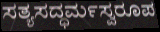
ಸತ್ಯಸದ್ಧರ್ಮಸ್ವರೂಪ